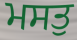
ਮਸਤੁ